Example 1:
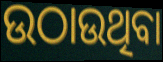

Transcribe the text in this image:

ଉଠାଉଥିବା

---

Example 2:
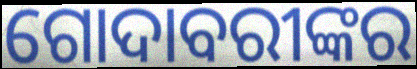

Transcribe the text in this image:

ଗୋଦାବରୀଙ୍କର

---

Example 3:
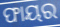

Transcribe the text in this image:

ଫାୟର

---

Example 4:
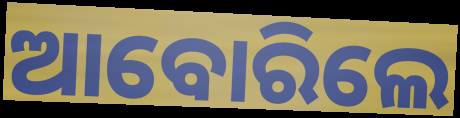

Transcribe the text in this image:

ଆବୋରିଲେ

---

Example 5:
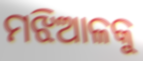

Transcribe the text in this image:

ମଝିଆଳକୁ